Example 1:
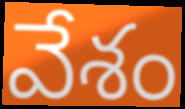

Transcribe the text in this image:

వేశం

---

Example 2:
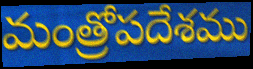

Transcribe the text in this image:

మంత్రోపదేశము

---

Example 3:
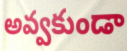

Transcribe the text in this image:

అవ్వకుండా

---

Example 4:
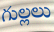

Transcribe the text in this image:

గుల్లలు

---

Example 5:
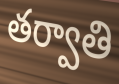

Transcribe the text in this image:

తర్వాతి